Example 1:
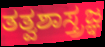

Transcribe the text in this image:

ತತ್ವಶಾಸ್ತ್ರಜ್ಞ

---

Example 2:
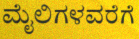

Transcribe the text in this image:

ಮೈಲಿಗಳವರೆಗೆ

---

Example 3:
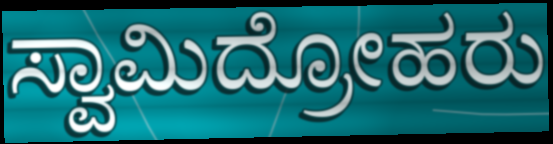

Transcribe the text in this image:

ಸ್ವಾಮಿದ್ರೋಹರು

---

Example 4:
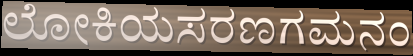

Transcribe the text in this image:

ಲೋಕಿಯಸರಣಗಮನಂ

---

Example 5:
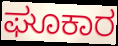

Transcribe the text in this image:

ಘೂಕಾರ